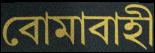
বোমাবাহী